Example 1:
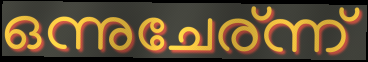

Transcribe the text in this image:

ഒന്നുചേര്ന്ന്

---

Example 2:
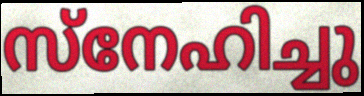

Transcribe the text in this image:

സ്നേഹിച്ചു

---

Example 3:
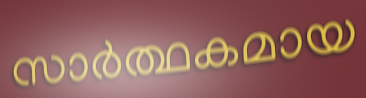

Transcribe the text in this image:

സാർത്ഥകമായ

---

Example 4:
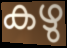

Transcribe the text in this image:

കഴു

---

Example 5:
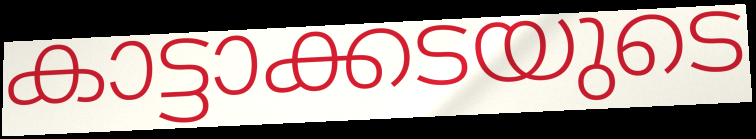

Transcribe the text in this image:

കാട്ടാക്കടയുടെ